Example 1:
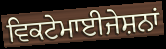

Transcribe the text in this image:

ਵਿਕਟੇਮਾਈਜੇਸ਼ਨਾਂ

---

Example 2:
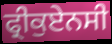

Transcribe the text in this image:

ਫ੍ਰੀਕੁਏਨਸੀ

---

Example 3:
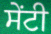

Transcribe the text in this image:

ਸੇਂਟੀ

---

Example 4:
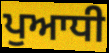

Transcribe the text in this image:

ਪੁਆਧੀ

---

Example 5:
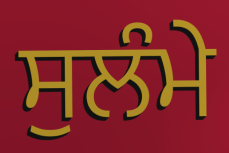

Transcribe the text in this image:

ਸੁਲੰਮੇ